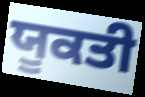
ਯੂਕਤੀ